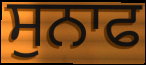
ਸੁਨਾਫ